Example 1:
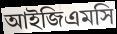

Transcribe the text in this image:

আইজিএমসি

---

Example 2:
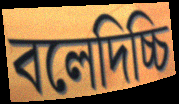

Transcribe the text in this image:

বলেদিচ্চি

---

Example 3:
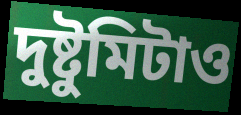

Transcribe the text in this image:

দুষ্টুমিটাও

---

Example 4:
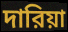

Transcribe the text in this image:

দারিয়া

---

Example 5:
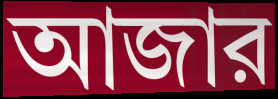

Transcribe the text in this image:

আজার